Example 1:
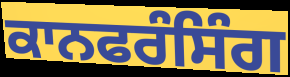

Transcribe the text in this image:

ਕਾਨਫਰੰਸਿੰਗ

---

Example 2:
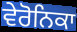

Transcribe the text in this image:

ਵੇਰੋਨਿਕਾ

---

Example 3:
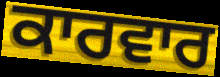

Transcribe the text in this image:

ਕਾਰਵਾਰ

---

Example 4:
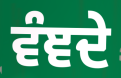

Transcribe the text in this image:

ਵੰਞਦੇ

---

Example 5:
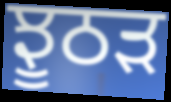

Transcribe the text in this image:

ਝੂਠੜ